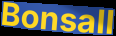
Bonsall